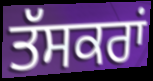
ਤੱਸਕਰਾਂ